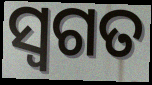
ସ୍ଵଗତ